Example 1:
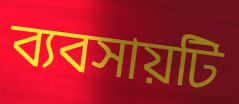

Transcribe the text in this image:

ব্যবসায়টি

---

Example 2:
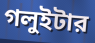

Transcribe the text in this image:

গলুইটার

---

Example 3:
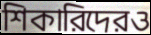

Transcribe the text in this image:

শিকারিদেরও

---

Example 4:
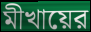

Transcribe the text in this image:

মীখায়ের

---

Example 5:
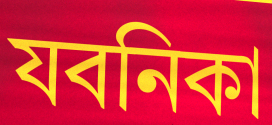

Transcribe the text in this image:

যবনিকা